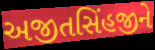
અજીતસિંહજીને